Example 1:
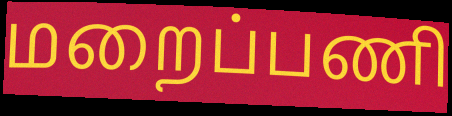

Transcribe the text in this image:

மறைப்பணி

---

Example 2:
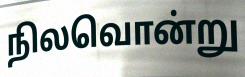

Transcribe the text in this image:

நிலவொன்று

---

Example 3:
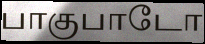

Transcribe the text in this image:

பாகுபாடோ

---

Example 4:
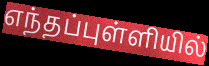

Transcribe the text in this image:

எந்தப்புள்ளியில்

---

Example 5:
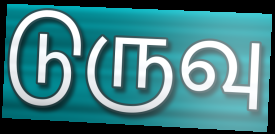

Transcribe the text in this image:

டுருவு